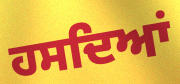
ਹਸਦਿਆਂ